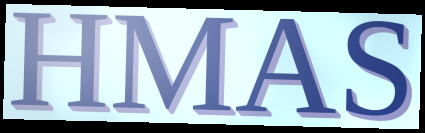
HMAS